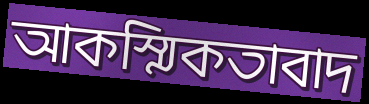
আকস্মিকতাবাদ